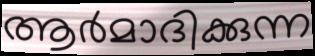
ആർമാദിക്കുന്ന